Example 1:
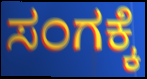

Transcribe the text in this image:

ಸಂಗಕ್ಕೆ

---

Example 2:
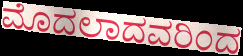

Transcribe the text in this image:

ಮೊದಲಾದವರಿಂದ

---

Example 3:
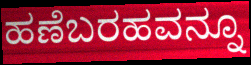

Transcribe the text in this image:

ಹಣೆಬರಹವನ್ನೂ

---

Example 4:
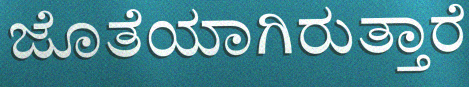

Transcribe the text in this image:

ಜೊತೆಯಾಗಿರುತ್ತಾರೆ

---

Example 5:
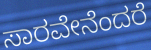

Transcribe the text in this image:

ಸಾರವೇನೆಂದರೆ